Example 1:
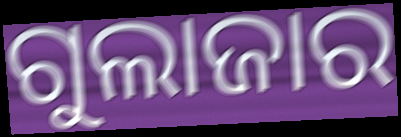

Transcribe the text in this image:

ଗୁଲାଜାର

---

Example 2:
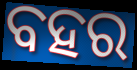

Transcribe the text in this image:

ବହର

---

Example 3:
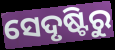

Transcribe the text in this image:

ସେଦୃଷ୍ଟିରୁ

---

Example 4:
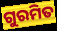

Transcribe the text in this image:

ଗୁରମିତ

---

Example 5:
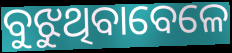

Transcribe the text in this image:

ବୁଝୁଥିବାବେଳେ